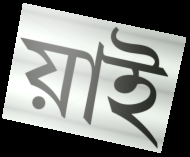
য়াই